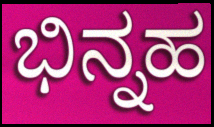
ಭಿನ್ನಹ